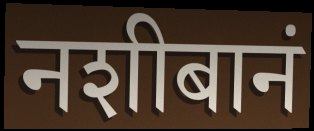
नशीबानं